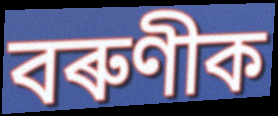
বৰুণীক